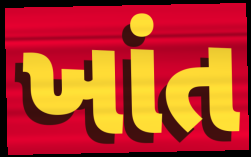
ખાંત